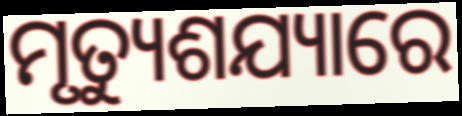
ମୃତ୍ୟୁଶଯ୍ୟାରେ